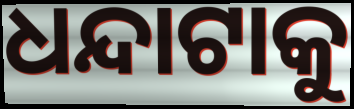
ଧନ୍ଦାଟାକୁ